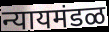
न्यायमंडळ